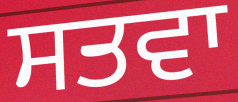
ਸਤਵਾ